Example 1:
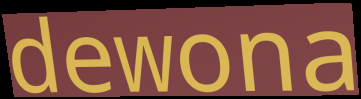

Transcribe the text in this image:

dewona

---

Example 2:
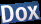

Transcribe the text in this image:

Dox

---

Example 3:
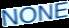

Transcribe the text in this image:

NONE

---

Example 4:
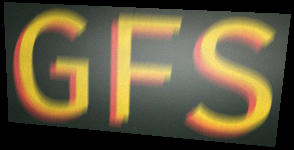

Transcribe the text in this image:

GFS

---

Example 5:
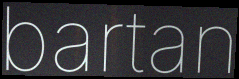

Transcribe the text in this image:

bartan